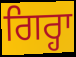
ਗਿਰ੍ਹਾ